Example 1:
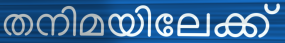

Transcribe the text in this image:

തനിമയിലേക്ക്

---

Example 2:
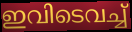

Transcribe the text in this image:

ഇവിടെവച്ച്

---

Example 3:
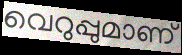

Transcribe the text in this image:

വെറുപ്പുമാണ്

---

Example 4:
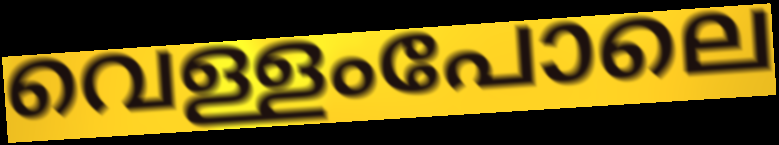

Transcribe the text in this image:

വെള്ളംപോലെ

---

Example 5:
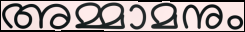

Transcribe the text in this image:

അമ്മാമനും